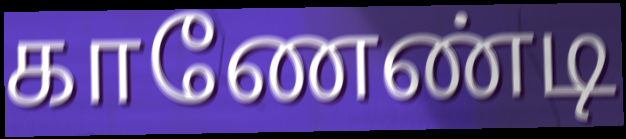
காணேண்டி